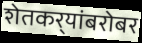
शेतकर्‍यांबरोबर